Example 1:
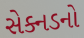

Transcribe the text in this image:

સેક્નડનો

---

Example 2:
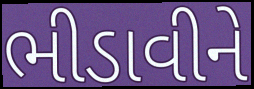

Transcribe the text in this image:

ભીડાવીને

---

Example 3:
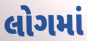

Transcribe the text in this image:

લોગમાં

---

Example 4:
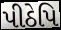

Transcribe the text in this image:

પીઠેપિ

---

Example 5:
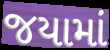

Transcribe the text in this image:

જયામાં